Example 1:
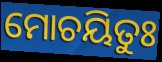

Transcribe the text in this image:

ମୋଚୟିତୁଃ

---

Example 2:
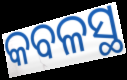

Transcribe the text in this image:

କବଳସ୍ଥ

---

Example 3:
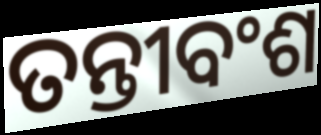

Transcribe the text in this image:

ତନ୍ତୀବଂଶ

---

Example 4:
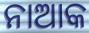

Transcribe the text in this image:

ନାଆକ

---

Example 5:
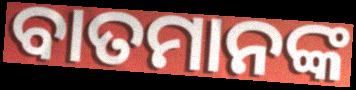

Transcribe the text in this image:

ବାତମାନଙ୍କ